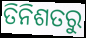
ତିନିଶତରୁ